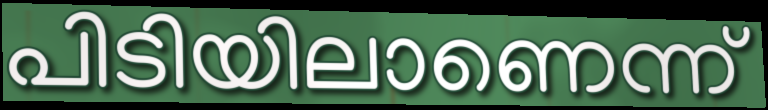
പിടിയിലാണെന്ന്